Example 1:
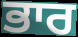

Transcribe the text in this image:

ਭਾਰ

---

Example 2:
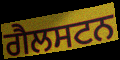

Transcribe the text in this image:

ਗੈਲਸਟਨ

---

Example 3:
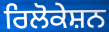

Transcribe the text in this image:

ਰਿਲੋਕੇਸ਼ਨ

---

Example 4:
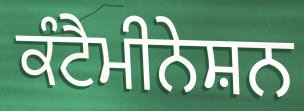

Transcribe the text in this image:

ਕੰਟੈਮੀਨੇਸ਼ਨ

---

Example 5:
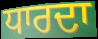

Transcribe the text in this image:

ਧਾਰਦਾ